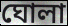
ঘোলা